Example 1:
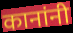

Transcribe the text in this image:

कानांनी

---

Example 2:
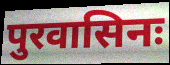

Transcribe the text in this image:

पुरवासिनः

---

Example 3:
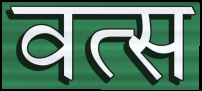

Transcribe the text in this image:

वत्स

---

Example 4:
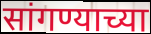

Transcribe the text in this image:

सांगण्याच्या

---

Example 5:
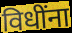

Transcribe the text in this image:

विधींना